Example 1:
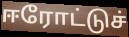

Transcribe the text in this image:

ஈரோட்டுச்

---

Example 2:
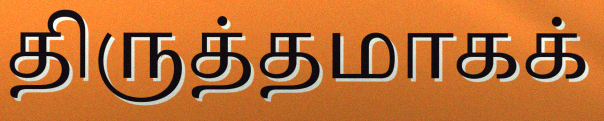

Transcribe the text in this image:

திருத்தமாகக்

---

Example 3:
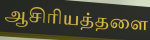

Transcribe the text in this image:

ஆசிரியத்தளை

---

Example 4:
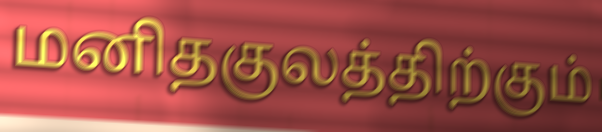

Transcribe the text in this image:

மனிதகுலத்திற்கும்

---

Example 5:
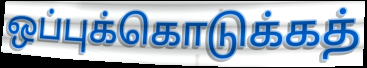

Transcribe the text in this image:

ஒப்புக்கொடுக்கத்